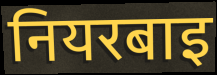
नियरबाइ